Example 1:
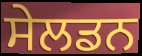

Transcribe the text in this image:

ਸੇਲਡਨ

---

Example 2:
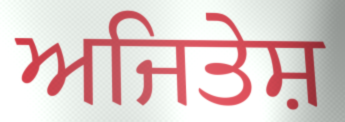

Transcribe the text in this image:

ਅਜਿਤੇਸ਼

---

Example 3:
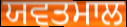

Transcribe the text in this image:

ਯਵਤਮਾਲ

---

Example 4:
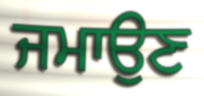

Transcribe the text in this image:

ਜਮਾਉਣ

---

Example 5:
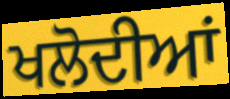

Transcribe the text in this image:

ਖਲੋਦੀਆਂ